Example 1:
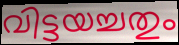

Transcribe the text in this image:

വിട്ടയച്ചതും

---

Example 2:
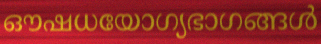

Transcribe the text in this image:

ഔഷധയോഗ്യഭാഗങ്ങൾ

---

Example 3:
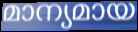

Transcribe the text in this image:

മാന്യമായ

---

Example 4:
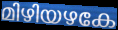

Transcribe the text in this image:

മിഴിയഴകേ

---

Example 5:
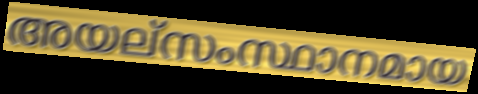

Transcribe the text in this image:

അയല്സംസ്ഥാനമായ